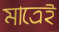
মাত্রেই